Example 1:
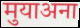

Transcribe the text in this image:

मुयाअना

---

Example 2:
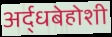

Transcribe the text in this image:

अर्द्धबेहोशी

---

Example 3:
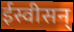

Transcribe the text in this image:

ईस्वीसन्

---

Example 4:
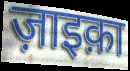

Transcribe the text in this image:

ज़ाइक़ा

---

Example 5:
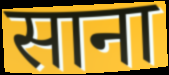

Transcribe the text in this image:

साना